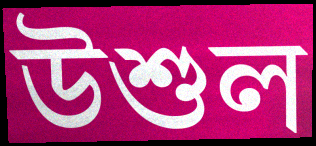
উশুল